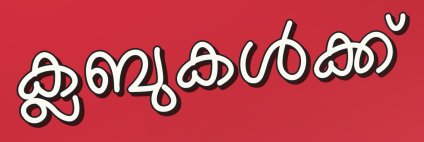
ക്ലബുകൾക്ക്